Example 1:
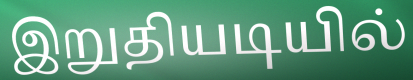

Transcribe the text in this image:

இறுதியடியில்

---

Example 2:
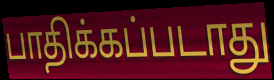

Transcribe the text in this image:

பாதிக்கப்படாது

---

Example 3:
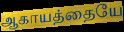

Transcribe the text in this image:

ஆகாயத்தையே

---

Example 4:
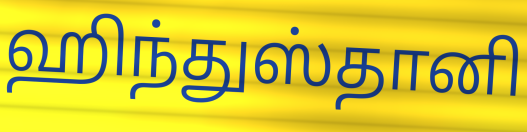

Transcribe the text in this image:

ஹிந்துஸ்தானி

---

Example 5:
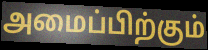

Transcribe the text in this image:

அமைப்பிற்கும்